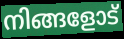
നിങ്ങളോട്